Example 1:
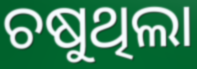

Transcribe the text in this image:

ଚଷୁଥିଲା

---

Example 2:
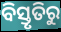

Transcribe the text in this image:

ବିସ୍ତୃତିରୁ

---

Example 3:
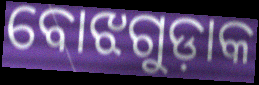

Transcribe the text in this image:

ବୋଝଗୁଡ଼ାକ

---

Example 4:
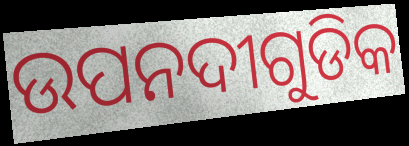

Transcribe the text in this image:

ଉପନଦୀଗୁଡିକ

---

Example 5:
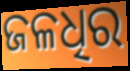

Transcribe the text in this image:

ଜଳଧିର